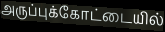
அருப்புக்கோட்டையில்